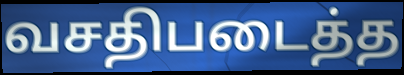
வசதிபடைத்த